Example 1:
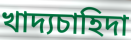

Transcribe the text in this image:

খাদ্যচাহিদা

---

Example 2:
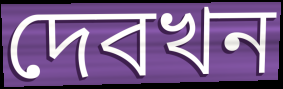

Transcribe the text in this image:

দেবখন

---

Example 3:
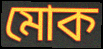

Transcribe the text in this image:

মোক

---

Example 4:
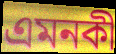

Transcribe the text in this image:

এমনকী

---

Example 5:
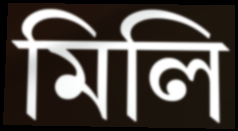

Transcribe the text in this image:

মিলি